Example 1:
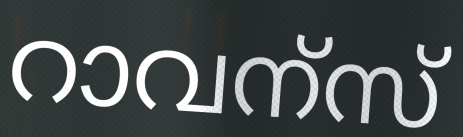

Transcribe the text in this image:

റാവന്സ്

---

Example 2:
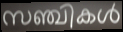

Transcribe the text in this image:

സഞ്ചികൾ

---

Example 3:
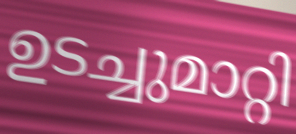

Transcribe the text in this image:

ഉടച്ചുമാറ്റി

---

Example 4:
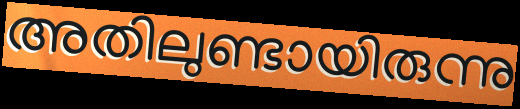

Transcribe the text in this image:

അതിലുണ്ടായിരുന്നു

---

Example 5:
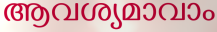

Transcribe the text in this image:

ആവശ്യമാവാം